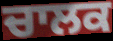
ਚਾਲਕ